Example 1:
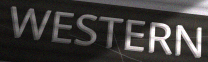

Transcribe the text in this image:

WESTERN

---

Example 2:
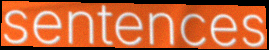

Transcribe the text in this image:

sentences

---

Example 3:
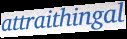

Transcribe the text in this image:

attraithingal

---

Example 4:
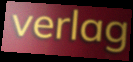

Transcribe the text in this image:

verlag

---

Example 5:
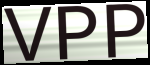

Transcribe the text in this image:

VPP